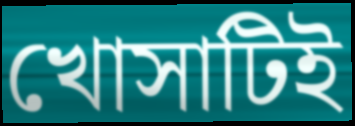
খোসাটিই